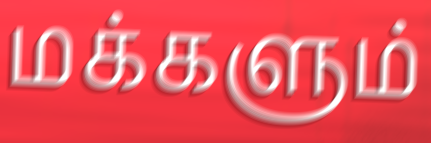
மக்களும்